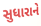
સુધારાને